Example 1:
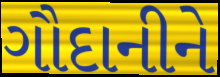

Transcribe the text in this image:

ગૌદાનીને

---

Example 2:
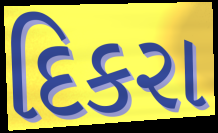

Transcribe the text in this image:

દિકરા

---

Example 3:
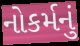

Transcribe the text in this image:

નોકર્મનું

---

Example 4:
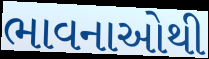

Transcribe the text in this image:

ભાવનાઓથી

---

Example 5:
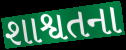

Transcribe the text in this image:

શાશ્વતના